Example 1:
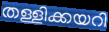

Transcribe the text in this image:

തള്ളിക്കയറി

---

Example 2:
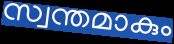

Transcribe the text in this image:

സ്വന്തമാകും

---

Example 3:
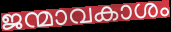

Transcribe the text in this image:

ജന്മാവകാശം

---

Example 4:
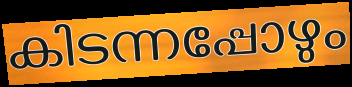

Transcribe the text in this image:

കിടന്നപ്പോഴും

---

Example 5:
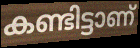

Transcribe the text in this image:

കണ്ടിട്ടാണ്